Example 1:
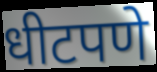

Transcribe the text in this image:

धीटपणे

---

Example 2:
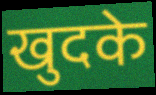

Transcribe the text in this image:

खुदके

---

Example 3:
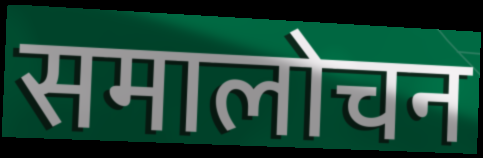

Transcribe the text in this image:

समालोचन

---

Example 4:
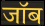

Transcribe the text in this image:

जॉब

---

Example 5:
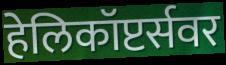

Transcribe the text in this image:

हेलिकॉप्टर्सवर